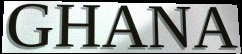
GHANA